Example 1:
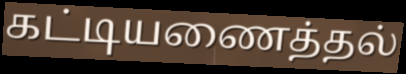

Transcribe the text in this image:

கட்டியணைத்தல்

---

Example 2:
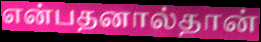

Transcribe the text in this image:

என்பதனால்தான்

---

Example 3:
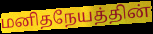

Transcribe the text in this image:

மனிதநேயத்தின்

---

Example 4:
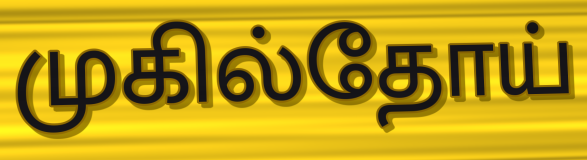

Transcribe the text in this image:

முகில்தோய்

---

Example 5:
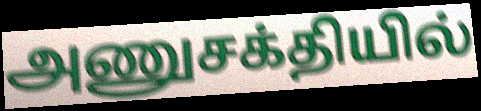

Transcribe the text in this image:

அணுசக்தியில்